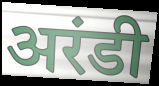
अरंडी